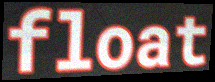
float